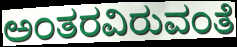
ಅಂತರವಿರುವಂತೆ